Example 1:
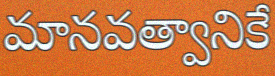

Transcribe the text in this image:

మానవత్వానికే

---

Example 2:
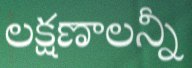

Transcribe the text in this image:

లక్షణాలన్నీ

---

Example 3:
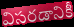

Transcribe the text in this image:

విసరడానికీ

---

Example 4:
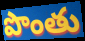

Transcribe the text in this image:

పొంతు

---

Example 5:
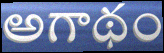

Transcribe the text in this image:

అగాథం